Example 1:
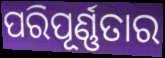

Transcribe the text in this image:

ପରିପୂର୍ଣ୍ଣତାର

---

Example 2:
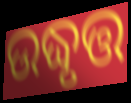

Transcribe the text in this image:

ଉଦ୍ଧୃତ୍ତ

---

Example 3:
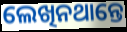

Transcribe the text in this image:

ଲେଖିନଥାନ୍ତେ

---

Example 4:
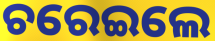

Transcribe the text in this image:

ଚରେଇଲେ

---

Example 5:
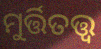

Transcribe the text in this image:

ମୁର୍ତ୍ତିତତ୍ତ୍ବ